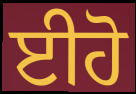
ਈਹੋ